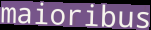
maioribus